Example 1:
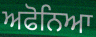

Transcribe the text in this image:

ਅਫੋਨਿਆ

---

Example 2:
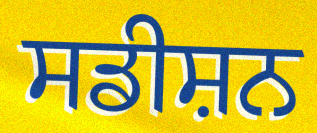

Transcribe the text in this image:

ਸਡੀਸ਼ਨ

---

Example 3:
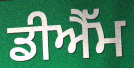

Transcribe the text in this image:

ਡੀਐੱਮ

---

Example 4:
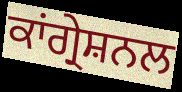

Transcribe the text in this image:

ਕਾਂਗ੍ਰੇਸ਼ਨਲ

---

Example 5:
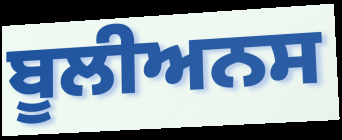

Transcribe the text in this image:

ਬੂਲੀਅਨਸ